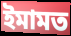
ইমামত